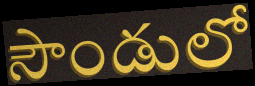
సౌండులో